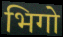
भिगो